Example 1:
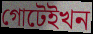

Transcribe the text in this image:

গোটেইখন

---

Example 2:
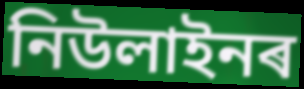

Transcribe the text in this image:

নিউলাইনৰ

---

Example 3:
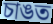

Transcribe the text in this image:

চাঙত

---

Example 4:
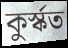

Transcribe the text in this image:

কুৰ্স্কত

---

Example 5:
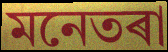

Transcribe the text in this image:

মনেতৰা